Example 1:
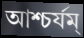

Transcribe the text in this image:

আশ্চর্যম্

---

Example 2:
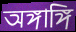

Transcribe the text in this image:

অঙ্গাঙ্গি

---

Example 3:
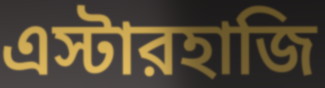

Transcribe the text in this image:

এস্টারহাজি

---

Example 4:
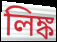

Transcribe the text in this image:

লিঙ্ক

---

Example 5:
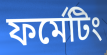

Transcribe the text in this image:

ফর্মেটিং